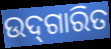
ଉଦ୍‌ଗାରିତ